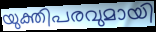
യുക്തിപരവുമായി